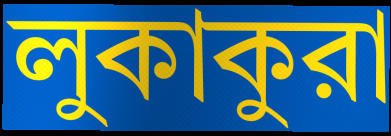
লুকাকুরা